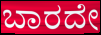
ಬಾರದೇ